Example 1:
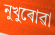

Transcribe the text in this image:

নুখুৰোৱা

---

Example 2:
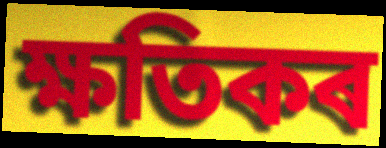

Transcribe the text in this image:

ক্ষতিকৰ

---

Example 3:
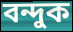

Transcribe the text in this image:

বন্দুক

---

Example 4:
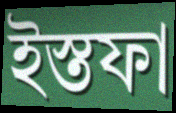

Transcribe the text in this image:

ইস্তফা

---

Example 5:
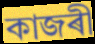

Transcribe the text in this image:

কাজৰী